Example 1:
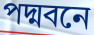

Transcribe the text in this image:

পদ্মবনে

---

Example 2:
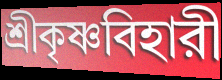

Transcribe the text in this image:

শ্রীকৃষ্ণবিহারী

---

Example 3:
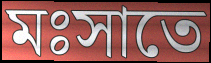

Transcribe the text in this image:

মঃসাতে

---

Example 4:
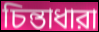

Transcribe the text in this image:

চিন্তাধারা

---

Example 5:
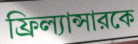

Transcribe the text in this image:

ফ্রিল্যান্সারকে